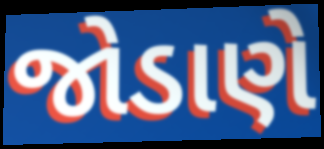
જોડાણે